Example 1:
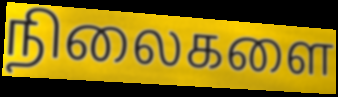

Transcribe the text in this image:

நிலைகளை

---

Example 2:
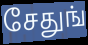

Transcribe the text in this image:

சேதுங்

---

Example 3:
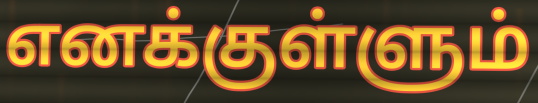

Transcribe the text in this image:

எனக்குள்ளும்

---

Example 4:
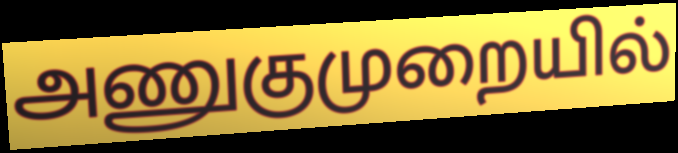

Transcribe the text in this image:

அணுகுமுறையில்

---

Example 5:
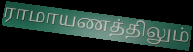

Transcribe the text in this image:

ராமாயணத்திலும்